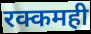
रक्कमही